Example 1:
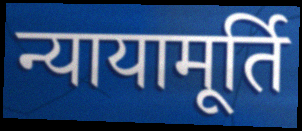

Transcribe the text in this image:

न्यायामूर्ति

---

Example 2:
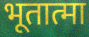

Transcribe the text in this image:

भूतात्मा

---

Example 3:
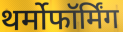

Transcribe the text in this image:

थर्मोफॉर्मिंग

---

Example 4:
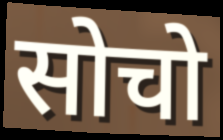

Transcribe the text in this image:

सोचो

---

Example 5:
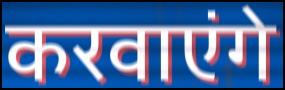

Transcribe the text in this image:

करवाएंगे